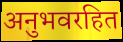
अनुभवरहित